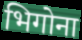
भिगोना